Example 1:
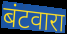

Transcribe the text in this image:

बंटवारा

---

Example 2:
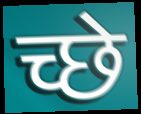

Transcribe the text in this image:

च्छे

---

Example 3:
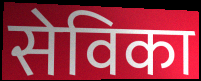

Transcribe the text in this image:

सेविका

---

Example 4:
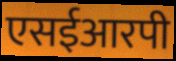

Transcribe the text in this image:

एसईआरपी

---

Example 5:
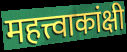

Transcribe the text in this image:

महत्त्वाकांक्षी